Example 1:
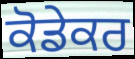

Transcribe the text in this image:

ਕੋਡੇਕਰ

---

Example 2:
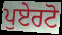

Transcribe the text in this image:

ਪੁਏਰਟੋ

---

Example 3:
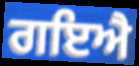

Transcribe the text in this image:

ਗਇਐ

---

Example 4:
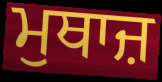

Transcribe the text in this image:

ਮੁਥਾਜ਼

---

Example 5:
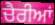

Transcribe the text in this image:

ਚੈਰੀਆਂ